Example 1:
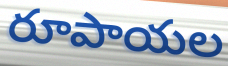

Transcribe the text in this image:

రూపాయల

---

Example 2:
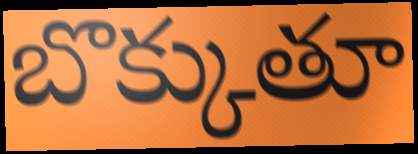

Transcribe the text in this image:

బొక్కుతూ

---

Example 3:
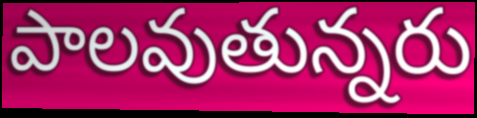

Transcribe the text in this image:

పాలవుతున్నరు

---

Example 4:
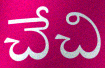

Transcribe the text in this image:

చేచి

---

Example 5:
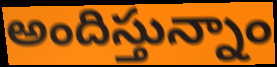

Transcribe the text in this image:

అందిస్తున్నాం